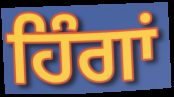
ਹਿੰਗਾਂ